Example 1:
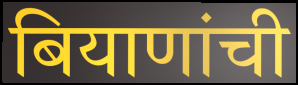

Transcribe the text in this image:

बियाणांची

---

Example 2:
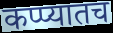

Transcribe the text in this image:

कप्प्यातच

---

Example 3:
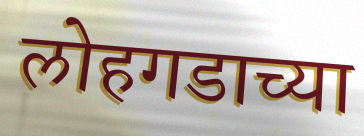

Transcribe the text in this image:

लोहगडाच्या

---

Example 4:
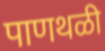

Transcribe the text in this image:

पाणथळी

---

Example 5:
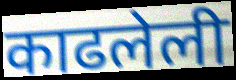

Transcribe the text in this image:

काढलेली